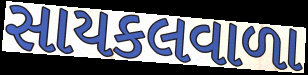
સાયકલવાળા